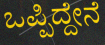
ಒಪ್ಪಿದ್ದೇನೆ